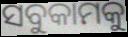
ସବୁକାମକୁ